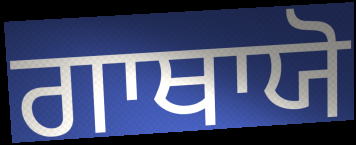
ਗਾਥਾਯੋ